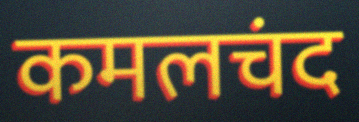
कमलचंद